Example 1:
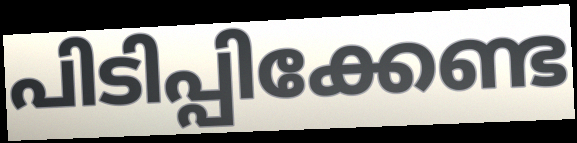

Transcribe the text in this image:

പിടിപ്പിക്കേണ്ട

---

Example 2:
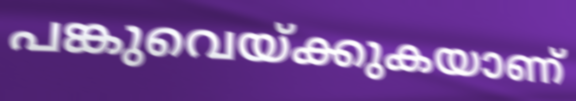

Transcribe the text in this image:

പങ്കുവെയ്ക്കുകയാണ്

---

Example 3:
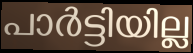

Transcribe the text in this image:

പാർട്ടിയില്ല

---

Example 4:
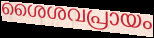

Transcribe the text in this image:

ശൈശവപ്രായം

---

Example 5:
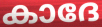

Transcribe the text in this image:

കാദേ